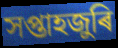
সপ্তাহজুৰি